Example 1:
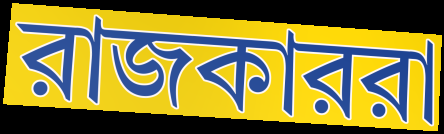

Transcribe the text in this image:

রাজকাররা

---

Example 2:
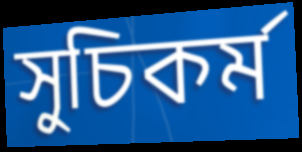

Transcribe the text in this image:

সুচিকর্ম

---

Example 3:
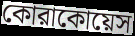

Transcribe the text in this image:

কোরাকোয়েস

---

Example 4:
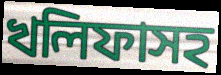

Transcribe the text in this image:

খলিফাসহ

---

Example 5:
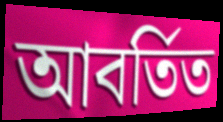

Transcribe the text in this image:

আবর্তিত